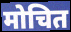
मोचित